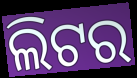
ଲିଟର